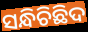
ସନ୍ଧିଚିଛିଦ